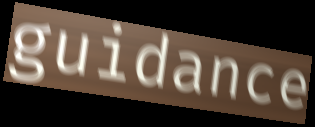
guidance